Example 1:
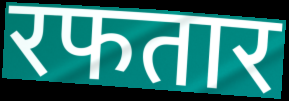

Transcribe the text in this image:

रफतार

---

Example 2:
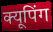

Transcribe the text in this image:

क्यूपिंग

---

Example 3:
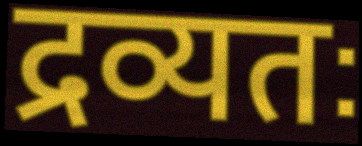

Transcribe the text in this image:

द्रव्यतः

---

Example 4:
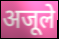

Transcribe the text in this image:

अजूले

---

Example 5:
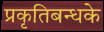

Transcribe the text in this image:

प्रकृतिबन्धके